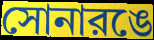
সোনারঙে